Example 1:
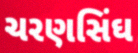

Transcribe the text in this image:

ચરણસિંઘ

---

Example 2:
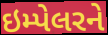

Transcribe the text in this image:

ઇમ્પેલરને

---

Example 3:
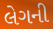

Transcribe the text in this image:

લેગની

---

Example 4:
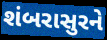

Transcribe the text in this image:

શંબરાસુરને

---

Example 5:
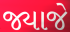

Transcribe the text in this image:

જ્યાજે